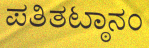
ಪತಿತಟ್ಠಾನಂ